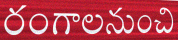
రంగాలనుంచి